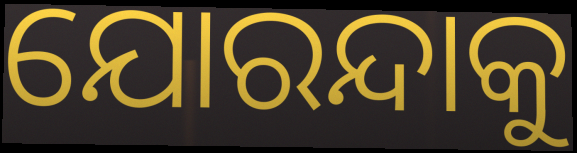
ଯୋରନ୍ଦାକୁ